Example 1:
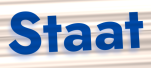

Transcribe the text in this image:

Staat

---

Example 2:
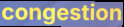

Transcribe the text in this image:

congestion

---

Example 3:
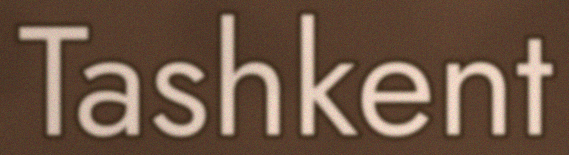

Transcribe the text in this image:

Tashkent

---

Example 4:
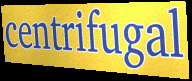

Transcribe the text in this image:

centrifugal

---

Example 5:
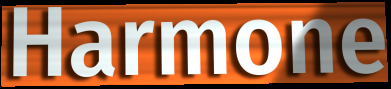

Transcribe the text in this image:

Harmone